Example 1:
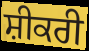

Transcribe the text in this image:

ਸ਼ੀਕਰੀ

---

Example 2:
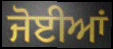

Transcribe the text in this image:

ਜੋਈਆਂ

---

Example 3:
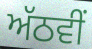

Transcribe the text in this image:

ਅੱਠਵੀਂ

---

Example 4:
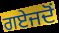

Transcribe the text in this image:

ਗਏਜਦੋਂ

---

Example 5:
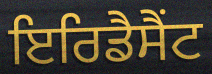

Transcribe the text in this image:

ਇਰਿਡੈਸੈਂਟ